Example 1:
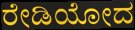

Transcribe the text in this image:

ರೇಡಿಯೋದ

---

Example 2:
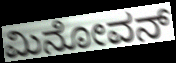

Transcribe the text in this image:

ಮಿನೋವನ್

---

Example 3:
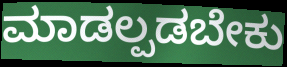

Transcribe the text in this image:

ಮಾಡಲ್ಪಡಬೇಕು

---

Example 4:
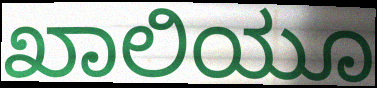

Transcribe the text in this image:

ಖಾಲಿಯೂ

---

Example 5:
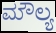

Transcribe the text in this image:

ಮೌಲ್ಯ